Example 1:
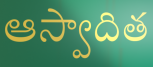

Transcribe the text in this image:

ఆస్వాదిత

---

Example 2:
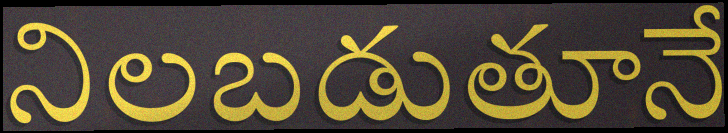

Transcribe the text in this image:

నిలబడుతూనే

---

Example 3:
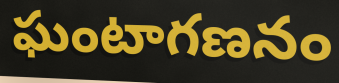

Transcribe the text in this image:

ఘంటాగణనం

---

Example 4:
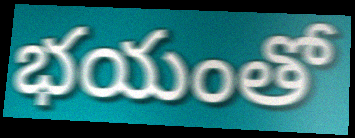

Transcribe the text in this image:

భయంతో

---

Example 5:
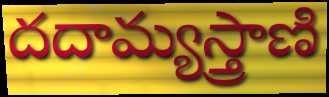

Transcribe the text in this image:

దదామ్యస్త్రాణి